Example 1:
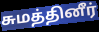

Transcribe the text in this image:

சுமத்தினீர்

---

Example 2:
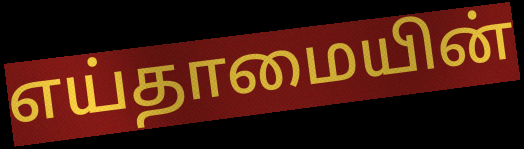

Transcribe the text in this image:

எய்தாமையின்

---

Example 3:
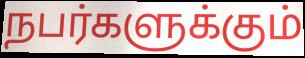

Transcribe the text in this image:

நபர்களுக்கும்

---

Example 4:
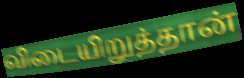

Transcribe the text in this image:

விடையிறுத்தான்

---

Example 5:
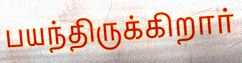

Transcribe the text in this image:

பயந்திருக்கிறார்